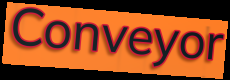
Conveyor